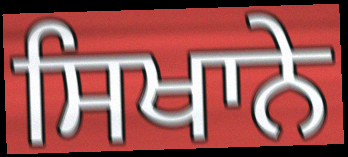
ਸਿਖਾਨੇ